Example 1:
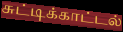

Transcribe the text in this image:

சுட்டிக்காட்டல்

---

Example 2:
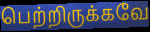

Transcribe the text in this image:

பெற்றிருக்கவே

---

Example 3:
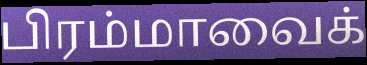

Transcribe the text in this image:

பிரம்மாவைக்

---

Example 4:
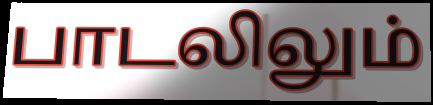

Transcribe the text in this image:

பாடலிலும்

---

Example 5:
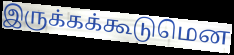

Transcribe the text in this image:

இருக்கக்கூடுமென